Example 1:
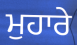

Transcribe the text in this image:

ਮੁਹਾਰੇ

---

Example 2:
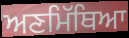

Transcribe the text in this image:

ਅਣਮਿੱਥਿਆ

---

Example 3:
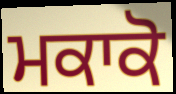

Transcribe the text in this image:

ਮਕਾਕੋ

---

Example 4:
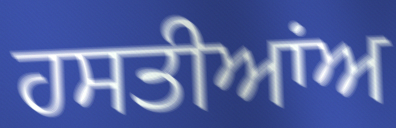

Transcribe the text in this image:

ਹਸਤੀਆਂਅ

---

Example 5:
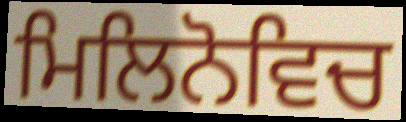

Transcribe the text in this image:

ਮਿਲਿਨੋਵਿਚ